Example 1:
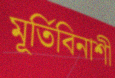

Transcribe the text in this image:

মূর্তিবিনাশী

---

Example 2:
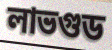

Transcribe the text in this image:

লাভগুড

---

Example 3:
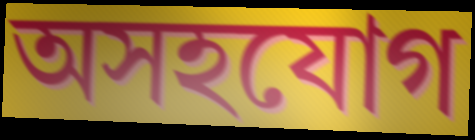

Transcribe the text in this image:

অসহযোগ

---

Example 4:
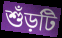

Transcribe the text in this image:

শুঁড়টি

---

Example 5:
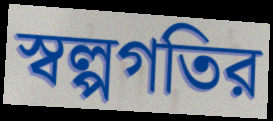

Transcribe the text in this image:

স্বল্পগতির